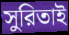
সুরিতাই